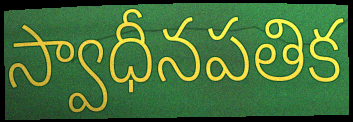
స్వాధీనపతిక